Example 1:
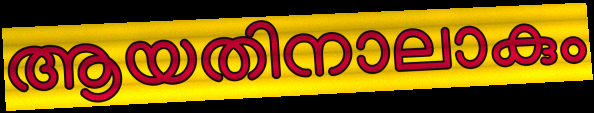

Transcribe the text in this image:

ആയതിനാലാകും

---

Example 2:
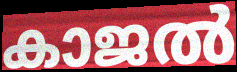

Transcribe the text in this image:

കാജൽ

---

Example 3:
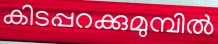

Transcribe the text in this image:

കിടപ്പറക്കുമുമ്പിൽ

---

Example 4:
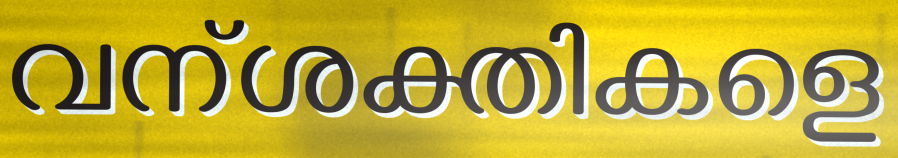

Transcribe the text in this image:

വന്ശക്തികളെ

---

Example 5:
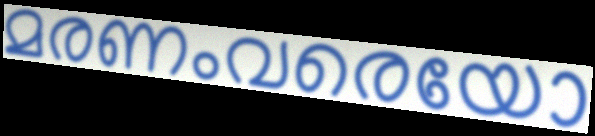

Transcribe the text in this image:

മരണംവരെയോ